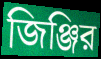
জিঞ্জির